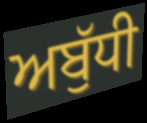
ਅਬੁੱਧੀ